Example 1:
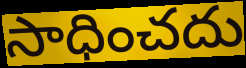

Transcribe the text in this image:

సాధించదు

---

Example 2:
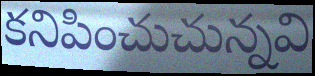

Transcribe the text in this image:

కనిపించుచున్నవి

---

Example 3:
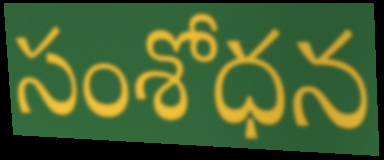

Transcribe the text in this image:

సంశోధన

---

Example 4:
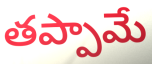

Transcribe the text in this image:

తప్పామే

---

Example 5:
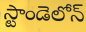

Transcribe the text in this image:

స్టాండెలోన్